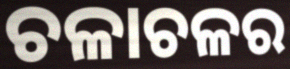
ଚଳାଚଳର